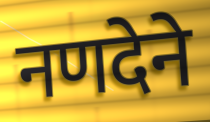
नणदेने